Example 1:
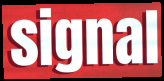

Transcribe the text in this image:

signal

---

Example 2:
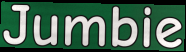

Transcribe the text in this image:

Jumbie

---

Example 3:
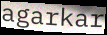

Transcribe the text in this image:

agarkar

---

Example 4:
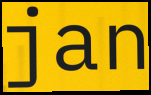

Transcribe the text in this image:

jan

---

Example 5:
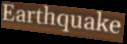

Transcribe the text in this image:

Earthquake